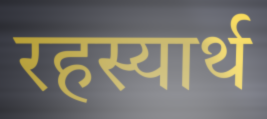
रहस्यार्थ